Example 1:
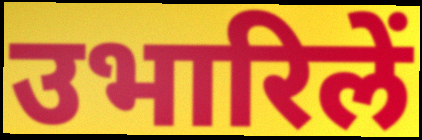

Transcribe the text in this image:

उभारिलें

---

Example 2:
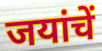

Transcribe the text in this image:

जयांचें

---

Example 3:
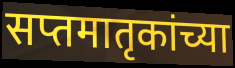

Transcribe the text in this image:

सप्तमातृकांच्या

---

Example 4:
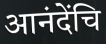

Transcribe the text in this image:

आनंदेंचि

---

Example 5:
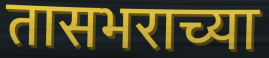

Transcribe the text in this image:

तासभराच्या